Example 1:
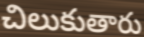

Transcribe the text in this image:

చిలుకుతారు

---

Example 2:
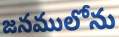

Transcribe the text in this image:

జనములోను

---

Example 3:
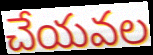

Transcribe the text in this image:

చేయవల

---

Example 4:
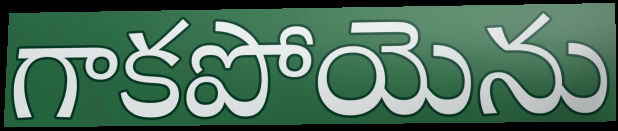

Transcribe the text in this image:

గాకపోయెను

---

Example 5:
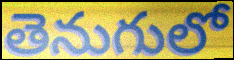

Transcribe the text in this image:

తెనుగులో